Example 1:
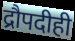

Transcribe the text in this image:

द्रौपदीही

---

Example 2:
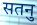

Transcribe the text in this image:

सतनु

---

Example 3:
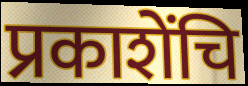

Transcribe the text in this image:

प्रकाशेंचि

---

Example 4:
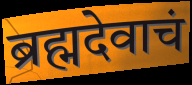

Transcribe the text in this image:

ब्रह्मदेवाचं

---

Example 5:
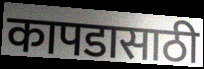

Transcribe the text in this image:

कापडासाठी